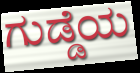
ಗುಡ್ಡೆಯ